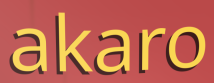
akaro